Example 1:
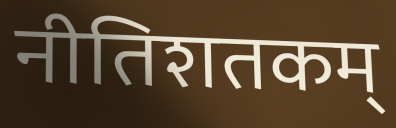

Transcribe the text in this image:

नीतिशतकम्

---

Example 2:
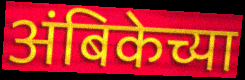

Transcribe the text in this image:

अंबिकेच्या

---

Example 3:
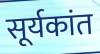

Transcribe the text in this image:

सूर्यकांत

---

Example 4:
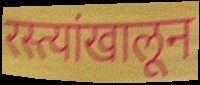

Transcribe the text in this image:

रस्त्यांखालून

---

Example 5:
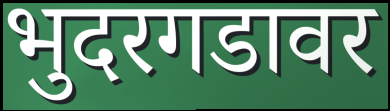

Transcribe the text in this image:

भुदरगडावर